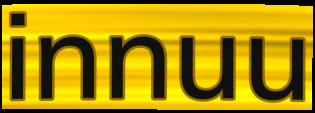
innuu